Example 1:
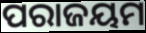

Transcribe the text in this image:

ପରାଜୟମ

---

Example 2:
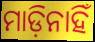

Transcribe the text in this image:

ମାଡ଼ିନାହିଁ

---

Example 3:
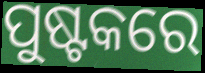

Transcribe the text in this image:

ପୁଷ୍ଟକରେ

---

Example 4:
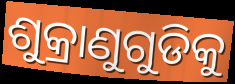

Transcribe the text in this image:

ଶୁକ୍ରାଣୁଗୁଡିକୁ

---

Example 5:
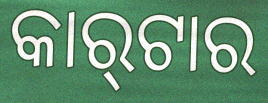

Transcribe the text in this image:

କାର୍‍ଟାର